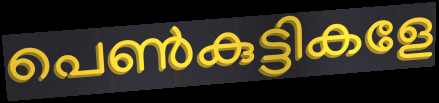
പെൺകുട്ടികളേ